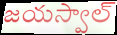
జయస్వాల్